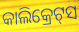
କାଲିକ୍ରେଟ୍‍ସ